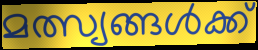
മത്സ്യങ്ങൾക്ക്